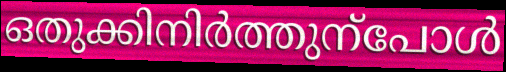
ഒതുക്കിനിർത്തുന്പോൾ